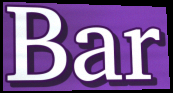
Bar